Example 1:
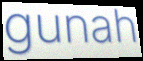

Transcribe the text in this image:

gunah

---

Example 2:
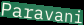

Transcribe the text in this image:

Paravani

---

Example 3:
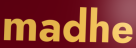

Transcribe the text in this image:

madhe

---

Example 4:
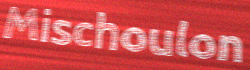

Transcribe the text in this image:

Mischoulon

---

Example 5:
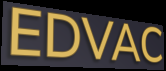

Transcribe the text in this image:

EDVAC